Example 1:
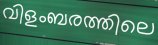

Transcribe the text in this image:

വിളംബരത്തിലെ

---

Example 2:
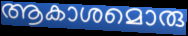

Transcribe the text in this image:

ആകാശമൊരു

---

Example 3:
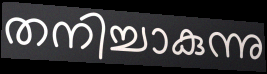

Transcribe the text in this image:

തനിച്ചാകുന്നു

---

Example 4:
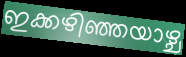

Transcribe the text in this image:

ഇക്കഴിഞ്ഞയാഴ്ച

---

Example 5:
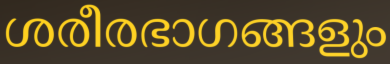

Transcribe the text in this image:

ശരീരഭാഗങ്ങളും